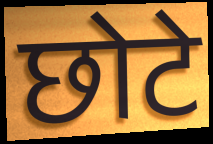
छोटे